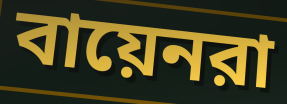
বায়েনরা